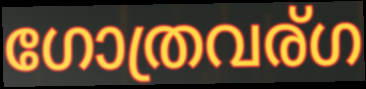
ഗോത്രവര്ഗ